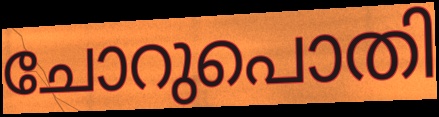
ചോറുപൊതി